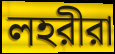
লহরীরা